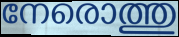
നേരൊത്തു